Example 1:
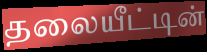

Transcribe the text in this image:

தலையீட்டின்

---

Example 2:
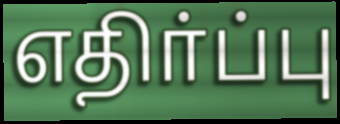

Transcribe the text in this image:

எதிர்ப்பு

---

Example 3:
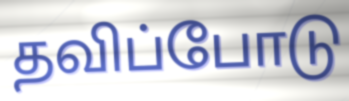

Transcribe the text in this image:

தவிப்போடு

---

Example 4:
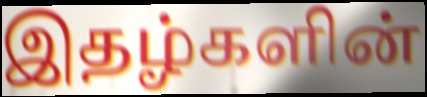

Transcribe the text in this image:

இதழ்களின்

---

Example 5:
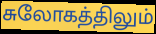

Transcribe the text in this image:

சுலோகத்திலும்